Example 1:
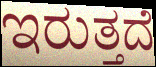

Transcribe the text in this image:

ಇರುತ್ತದೆ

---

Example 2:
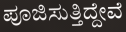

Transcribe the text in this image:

ಪೂಜಿಸುತ್ತಿದ್ದೇವೆ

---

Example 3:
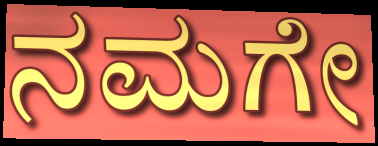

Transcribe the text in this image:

ನಮಗೇ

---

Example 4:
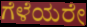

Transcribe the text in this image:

ಗೆಳೆಯರೇ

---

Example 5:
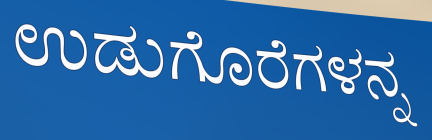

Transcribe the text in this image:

ಉಡುಗೊರೆಗಳನ್ನ